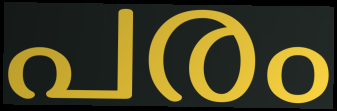
പരം